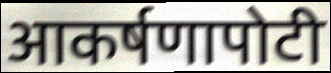
आकर्षणापोटी